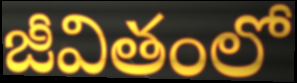
జీవితంలో